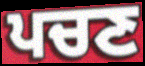
ਪਚਣ